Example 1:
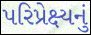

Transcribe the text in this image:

પરિપ્રેક્ષ્યનું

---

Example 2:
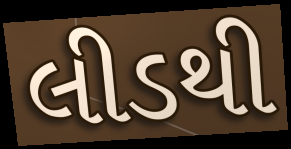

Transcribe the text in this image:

લીડથી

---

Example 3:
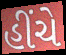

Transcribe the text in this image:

હીંચે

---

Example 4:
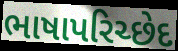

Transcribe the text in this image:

ભાષાપરિચ્છેદ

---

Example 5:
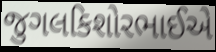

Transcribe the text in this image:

જુગલકિશોરભાઈએ